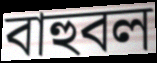
বাহুবল